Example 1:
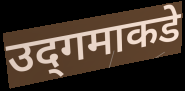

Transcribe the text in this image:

उद्‌गमाकडे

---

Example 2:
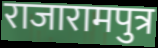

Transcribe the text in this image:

राजारामपुत्र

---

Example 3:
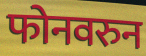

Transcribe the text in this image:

फोनवरुन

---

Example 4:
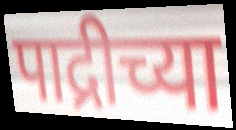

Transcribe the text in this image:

पाद्रीच्या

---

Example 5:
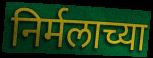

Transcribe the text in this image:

निर्मलाच्या